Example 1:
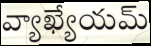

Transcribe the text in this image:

వ్యాఖ్యేయమ్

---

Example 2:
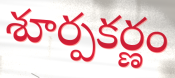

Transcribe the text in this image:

శూర్పకర్ణం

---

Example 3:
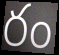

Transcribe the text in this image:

రం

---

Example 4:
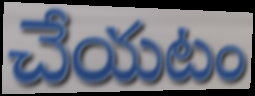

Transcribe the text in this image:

చేయటం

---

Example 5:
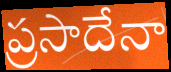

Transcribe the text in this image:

ప్రసాదేనా